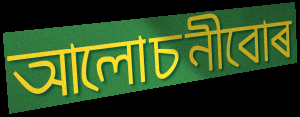
আলোচনীবোৰ